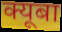
क्यूबा